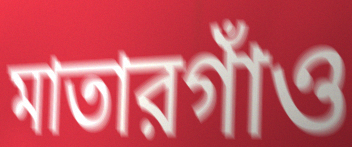
মাতারগাঁও